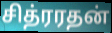
சித்ரரதன்